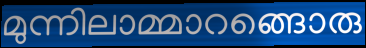
മുന്നിലാമ്മാറങ്ങൊരു